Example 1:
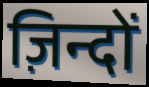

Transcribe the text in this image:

ज़िन्दों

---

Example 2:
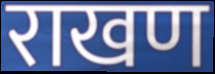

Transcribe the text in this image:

राखण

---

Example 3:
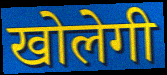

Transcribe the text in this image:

खोलेगी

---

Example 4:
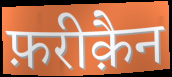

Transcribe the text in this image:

फ़रीक़ैन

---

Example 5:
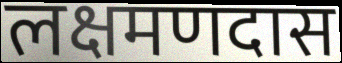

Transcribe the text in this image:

लक्षमणदास